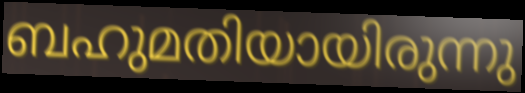
ബഹുമതിയായിരുന്നു